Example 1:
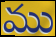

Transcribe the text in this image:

ము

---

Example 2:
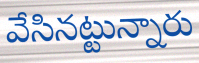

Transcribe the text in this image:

వేసినట్టున్నారు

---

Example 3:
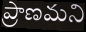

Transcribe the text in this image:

ప్రాణమని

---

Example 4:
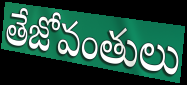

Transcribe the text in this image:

తేజోవంతులు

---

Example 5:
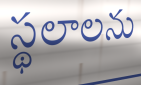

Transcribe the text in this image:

స్థలాలను